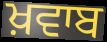
ਖ਼ਵਾਬ